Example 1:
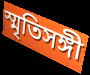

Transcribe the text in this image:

স্মৃতিসঙ্গী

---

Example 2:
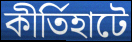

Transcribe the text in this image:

কীর্তিহাটে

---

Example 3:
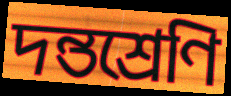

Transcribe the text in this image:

দন্তশ্রেণি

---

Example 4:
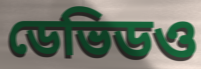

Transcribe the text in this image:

ডেভিডও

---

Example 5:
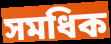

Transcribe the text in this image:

সমধিক